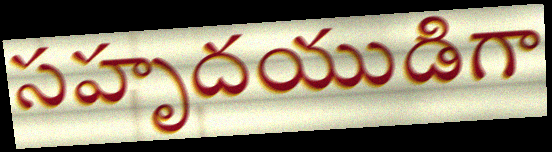
సహృదయుడిగా